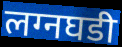
लग्नघडी